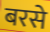
बरसे